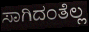
ಸಾಗಿದಂತೆಲ್ಲ